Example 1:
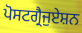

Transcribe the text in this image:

ਪੋਸਟਗ੍ਰੈਜੁਏਸ਼ਨ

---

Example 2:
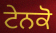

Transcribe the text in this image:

ਟੇਨਕੋ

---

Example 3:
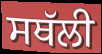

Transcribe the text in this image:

ਸਥੱਲੀ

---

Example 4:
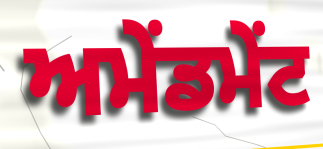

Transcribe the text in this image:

ਅਮੇਂਡਮੇਂਟ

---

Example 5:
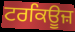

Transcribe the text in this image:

ਟਰਕਿਊਜ਼